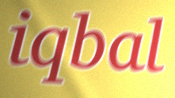
iqbal